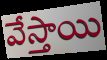
వేస్తాయి